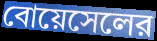
বোয়েসেলের